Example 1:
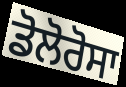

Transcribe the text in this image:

ਡੋਲੋਰੋਸਾ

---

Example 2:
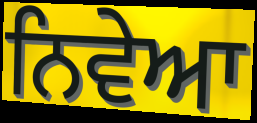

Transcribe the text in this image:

ਨਿਵੇਆ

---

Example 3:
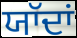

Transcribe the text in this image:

ਯਾੱਦਾਂ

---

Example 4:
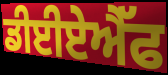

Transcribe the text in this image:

ਡੀਈਏਐੱਫ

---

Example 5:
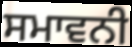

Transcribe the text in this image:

ਸਮਾਵਨੀ